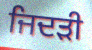
ਜਿਦੜੀ